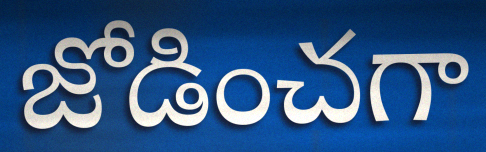
జోడించగా